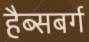
हैब्सबर्ग